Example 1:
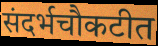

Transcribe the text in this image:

संदर्भचौकटीत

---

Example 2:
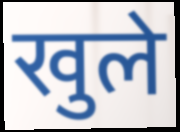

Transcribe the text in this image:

खुले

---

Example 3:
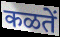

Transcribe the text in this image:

कळतें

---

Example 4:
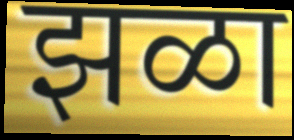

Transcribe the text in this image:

झळा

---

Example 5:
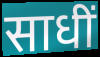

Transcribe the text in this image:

साधीं